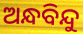
ଅନ୍ଧବିନ୍ଦୁ